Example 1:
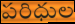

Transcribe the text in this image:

పరిధుల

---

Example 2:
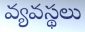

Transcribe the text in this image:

వ్యవస్థలు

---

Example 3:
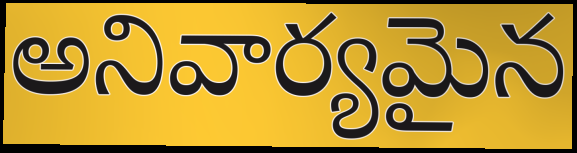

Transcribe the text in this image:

అనివార్యమైన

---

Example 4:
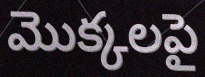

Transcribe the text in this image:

మొక్కలపై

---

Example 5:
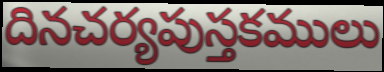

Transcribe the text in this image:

దినచర్యపుస్తకములు